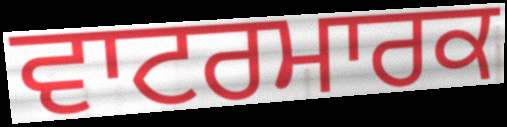
ਵਾਟਰਮਾਰਕ